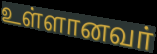
உள்ளானவர்